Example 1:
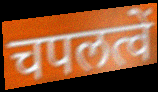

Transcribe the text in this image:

चपलत्वें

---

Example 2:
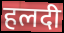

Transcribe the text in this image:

हलदी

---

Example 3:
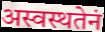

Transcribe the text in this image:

अस्वस्थतेनं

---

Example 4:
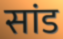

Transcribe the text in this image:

सांड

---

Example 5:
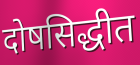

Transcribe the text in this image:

दोषसिद्धीत